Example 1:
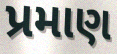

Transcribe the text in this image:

પ્રમાણ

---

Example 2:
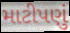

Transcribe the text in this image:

માટીપણું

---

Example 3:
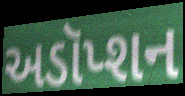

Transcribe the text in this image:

અડૉપ્શન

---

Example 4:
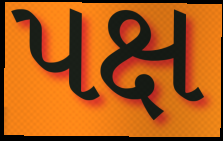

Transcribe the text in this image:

પક્ષ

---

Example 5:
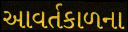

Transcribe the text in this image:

આવર્તકાળના